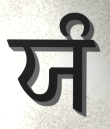
ਯੰ